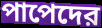
পাপেদের